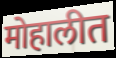
मोहालीत